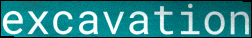
excavation